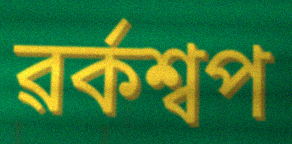
ৱৰ্কশ্বপ